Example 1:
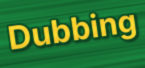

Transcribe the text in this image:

Dubbing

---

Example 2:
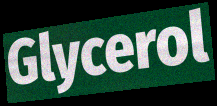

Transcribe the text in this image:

Glycerol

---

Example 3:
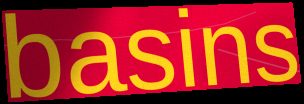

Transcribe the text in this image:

basins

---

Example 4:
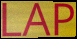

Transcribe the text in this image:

LAP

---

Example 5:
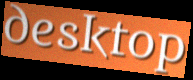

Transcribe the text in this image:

desktop